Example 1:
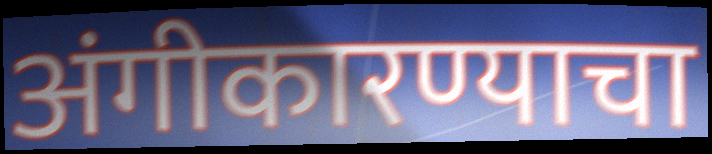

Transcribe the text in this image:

अंगीकारण्याचा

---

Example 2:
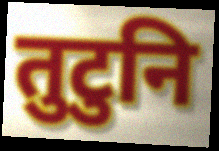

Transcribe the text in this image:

तुटुनि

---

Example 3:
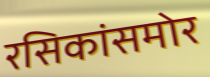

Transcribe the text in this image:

रसिकांसमोर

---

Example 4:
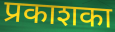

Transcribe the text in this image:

प्रकाशका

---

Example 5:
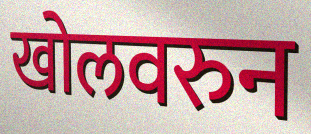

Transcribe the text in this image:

खोलवरुन